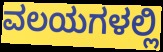
ವಲಯಗಳಲ್ಲಿ